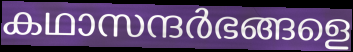
കഥാസന്ദർഭങ്ങളെ